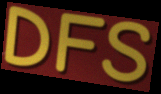
DFS